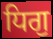
ਧਿਗੁ